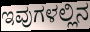
ಇವುಗಳಲ್ಲಿನ